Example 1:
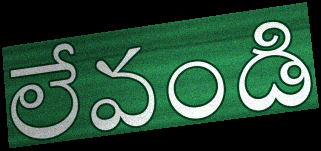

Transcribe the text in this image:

లేవండి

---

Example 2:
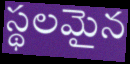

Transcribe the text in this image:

స్థలమైన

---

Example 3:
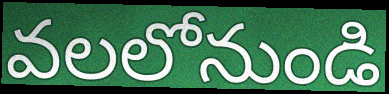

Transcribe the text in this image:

వలలోనుండి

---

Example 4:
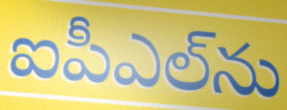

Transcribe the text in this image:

ఐపీఎల్‌ను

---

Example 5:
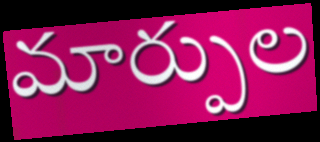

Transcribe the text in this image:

మార్పుల